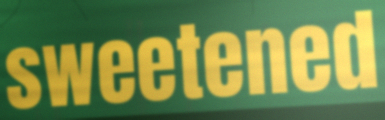
sweetened